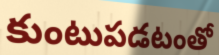
కుంటుపడటంతో